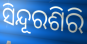
ସିନ୍ଦୂରଶିରି